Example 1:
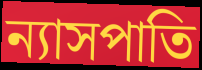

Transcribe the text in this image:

ন্যাসপাতি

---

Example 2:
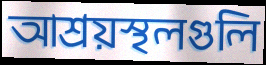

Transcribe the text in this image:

আশ্রয়স্থলগুলি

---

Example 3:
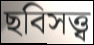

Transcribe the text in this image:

ছবিসত্ত্ব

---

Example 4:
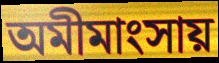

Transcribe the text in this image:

অমীমাংসায়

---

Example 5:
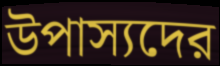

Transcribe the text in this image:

উপাস্যদের